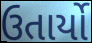
ઉતાર્યો